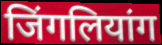
जिंगलियांग